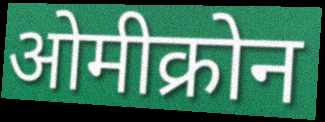
ओमीक्रोन